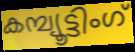
കമ്പ്യൂട്ടിംഗ്